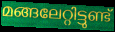
മങ്ങലേറ്റിട്ടുണ്ട്